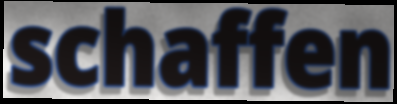
schaffen